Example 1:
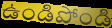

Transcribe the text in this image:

ఉండిపోండి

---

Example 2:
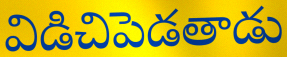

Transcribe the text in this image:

విడిచిపెడతాడు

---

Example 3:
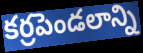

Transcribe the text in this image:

కర్రపెండలాన్ని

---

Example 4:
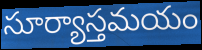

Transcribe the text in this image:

సూర్యాస్తమయం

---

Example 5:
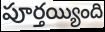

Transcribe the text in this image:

పూర్తయ్యింది